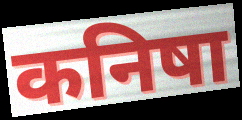
कनिषा